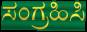
ಸಂಗ್ರಹಿಸಿ